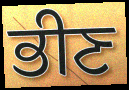
ਭੀਣ